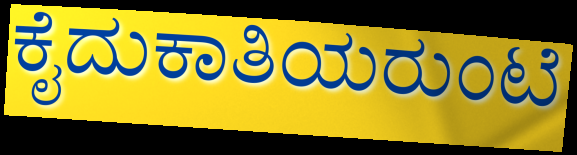
ಕೈದುಕಾತಿಯರುಂಟೆ